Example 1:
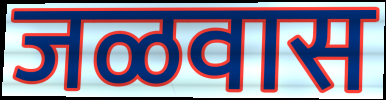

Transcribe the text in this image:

जळवास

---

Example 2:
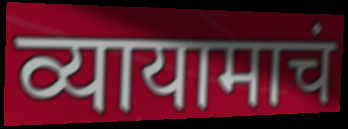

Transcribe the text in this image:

व्यायामाचं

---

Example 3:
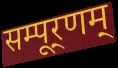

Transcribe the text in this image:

सम्पूर्णम्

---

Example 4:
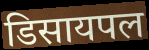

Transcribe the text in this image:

डिसायपल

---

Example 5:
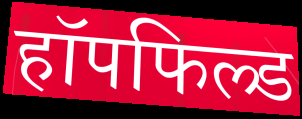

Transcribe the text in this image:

हॉपफिल्ड